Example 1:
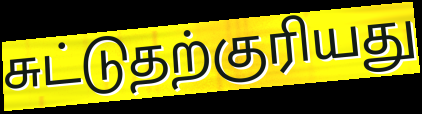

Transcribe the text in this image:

சுட்டுதற்குரியது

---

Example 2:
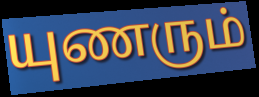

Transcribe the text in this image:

யுணரும்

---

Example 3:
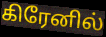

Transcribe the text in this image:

கிரேனில்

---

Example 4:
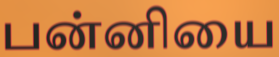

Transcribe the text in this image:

பன்னியை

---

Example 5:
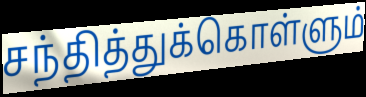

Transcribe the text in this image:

சந்தித்துக்கொள்ளும்